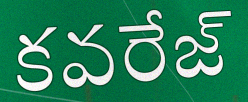
కవరేజ్